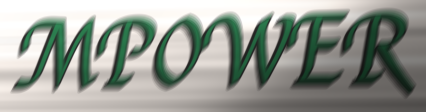
MPOWER